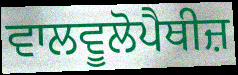
ਵਾਲਵੂਲੋਪੈਥੀਜ਼